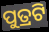
ପୁତ୍ରଟି